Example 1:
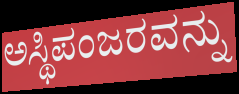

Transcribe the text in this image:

ಅಸ್ಥಿಪಂಜರವನ್ನು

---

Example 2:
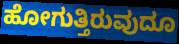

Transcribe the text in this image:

ಹೋಗುತ್ತಿರುವುದೂ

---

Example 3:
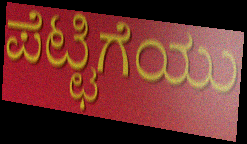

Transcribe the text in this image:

ಪೆಟ್ಟಿಗೆಯು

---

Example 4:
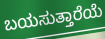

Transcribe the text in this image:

ಬಯಸುತ್ತಾರೆಯೆ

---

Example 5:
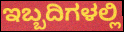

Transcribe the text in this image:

ಇಬ್ಬದಿಗಳಲ್ಲಿ